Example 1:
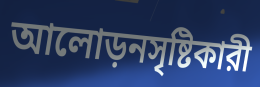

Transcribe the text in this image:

আলোড়নসৃষ্টিকারী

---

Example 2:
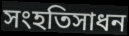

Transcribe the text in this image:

সংহতিসাধন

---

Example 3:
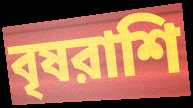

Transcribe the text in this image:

বৃষরাশি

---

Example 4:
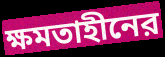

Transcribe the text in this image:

ক্ষমতাহীনের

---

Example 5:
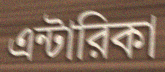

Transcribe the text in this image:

এন্টারিকা